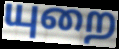
யுறை